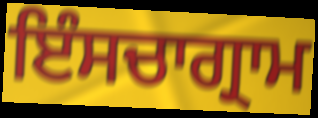
ਇੰਸਚਾਗ੍ਰਾਮ